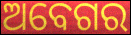
ଅବେଗର